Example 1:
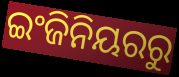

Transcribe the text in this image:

ଇଂଜିନିୟରରୁ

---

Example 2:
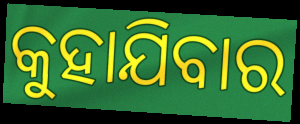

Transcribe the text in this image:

କୁହାଯିବାର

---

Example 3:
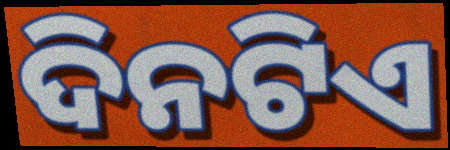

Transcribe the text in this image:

ଦିନଟିଏ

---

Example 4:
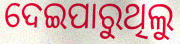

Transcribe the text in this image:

ଦେଇପାରୁଥିଲୁ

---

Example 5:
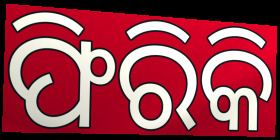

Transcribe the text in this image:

ଫିରିକି